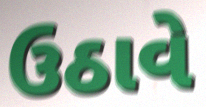
ઉઠાવે